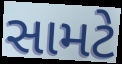
સામટે